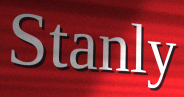
Stanly